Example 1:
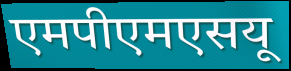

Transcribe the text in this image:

एमपीएमएसयू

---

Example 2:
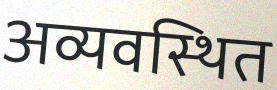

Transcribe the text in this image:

अव्यवस्थित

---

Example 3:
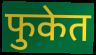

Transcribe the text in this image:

फुकेत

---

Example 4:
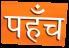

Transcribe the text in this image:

पहँच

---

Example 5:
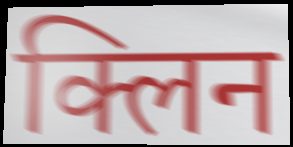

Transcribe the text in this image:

क्लिन